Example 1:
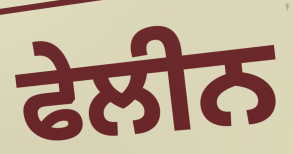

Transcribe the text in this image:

ਫੇਲੀਨ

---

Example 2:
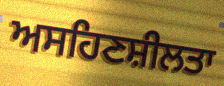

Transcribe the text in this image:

ਅਸਹਿਣਸ਼ੀਲਤਾ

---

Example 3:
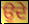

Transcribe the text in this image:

ਉਦੇ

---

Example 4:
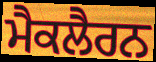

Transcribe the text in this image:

ਮੈਕਲੈਰਨ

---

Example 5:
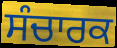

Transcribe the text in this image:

ਸੰਚਾਰਕ